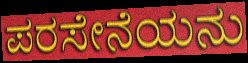
ಪರಸೇನೆಯನು